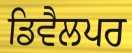
ਡਿਵੈਲਪਰ